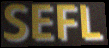
SEFL